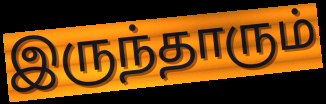
இருந்தாரும்